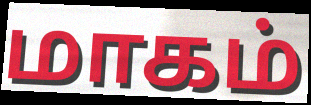
மாகம்